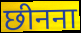
छीनना